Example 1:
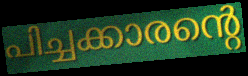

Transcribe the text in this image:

പിച്ചക്കാരന്റെ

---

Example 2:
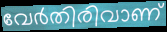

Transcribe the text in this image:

വേർതിരിവാണ്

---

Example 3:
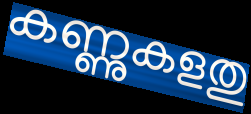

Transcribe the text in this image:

കണ്ണുകളതു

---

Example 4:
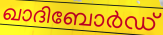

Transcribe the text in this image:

ഖാദിബോർഡ്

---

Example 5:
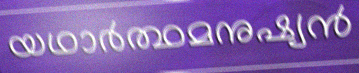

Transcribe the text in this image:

യഥാർത്ഥമനുഷ്യൻ